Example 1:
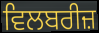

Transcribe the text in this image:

ਵਿਲਬਰੀਜ਼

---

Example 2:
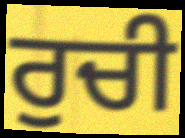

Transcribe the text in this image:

ਰੁਚੀ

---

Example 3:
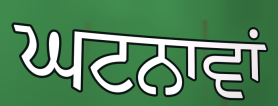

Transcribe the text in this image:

ਘਟਨਾਵਾਂ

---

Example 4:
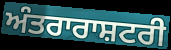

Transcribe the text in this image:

ਅੰਤਰਾਰਾਸ਼ਟਰੀ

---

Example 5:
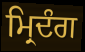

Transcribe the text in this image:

ਮ੍ਰਿਦੰਗ